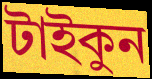
টাইকুন